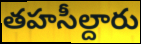
తహసీల్దారు